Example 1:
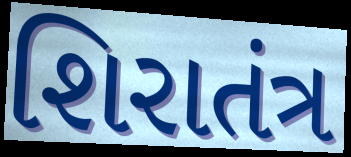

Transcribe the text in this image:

શિરાતંત્ર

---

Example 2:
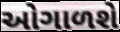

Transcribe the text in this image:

ઓગાળશે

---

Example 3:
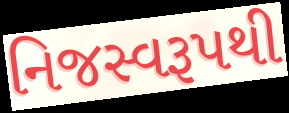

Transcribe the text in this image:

નિજસ્વરૂપથી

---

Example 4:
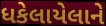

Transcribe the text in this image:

ધકેલાયેલાને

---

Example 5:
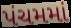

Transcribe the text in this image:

પંચમમાં